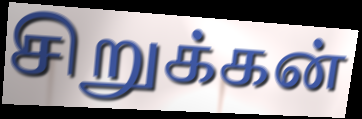
சிறுக்கன்